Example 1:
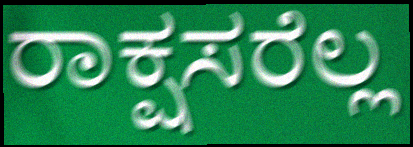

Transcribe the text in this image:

ರಾಕ್ಷಸರೆಲ್ಲ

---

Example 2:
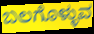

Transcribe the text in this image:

ಬಲಗೊಳ್ಳುವ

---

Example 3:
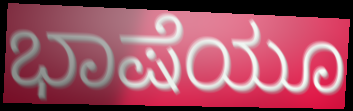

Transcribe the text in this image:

ಭಾಷೆಯೂ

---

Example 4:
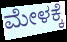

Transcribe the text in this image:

ಮೇಳಕ್ಕೆ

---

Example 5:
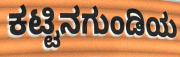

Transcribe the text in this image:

ಕಟ್ಟಿನಗುಂಡಿಯ